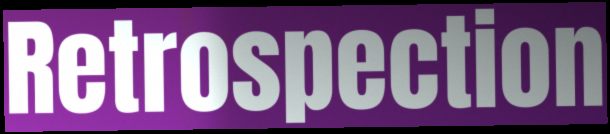
Retrospection